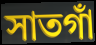
সাতগাঁ